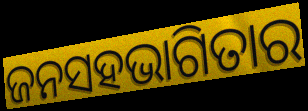
ଜନସହଭାଗିତାର